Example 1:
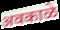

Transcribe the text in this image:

अवकाळे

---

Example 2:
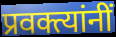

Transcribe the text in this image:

प्रवक्त्यांनीं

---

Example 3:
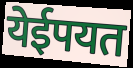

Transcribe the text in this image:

येईपयत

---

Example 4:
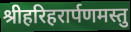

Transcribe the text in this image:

श्रीहरिहरार्पणमस्तु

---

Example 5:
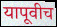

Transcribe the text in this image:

यापूवीच